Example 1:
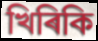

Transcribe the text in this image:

খিৰিকি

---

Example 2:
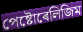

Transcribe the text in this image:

পেষ্টোৰেলিজিম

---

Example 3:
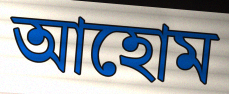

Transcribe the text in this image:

আহোম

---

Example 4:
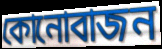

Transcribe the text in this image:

কোনোবাজন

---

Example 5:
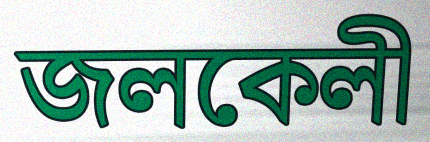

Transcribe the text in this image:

জলকেলী